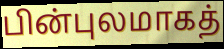
பின்புலமாகத்